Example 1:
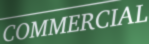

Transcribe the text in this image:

COMMERCIAL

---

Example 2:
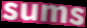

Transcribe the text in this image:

sums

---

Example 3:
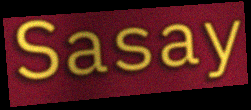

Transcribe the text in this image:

Sasay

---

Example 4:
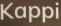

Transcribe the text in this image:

Kappi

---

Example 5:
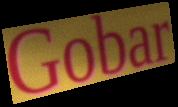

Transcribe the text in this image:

Gobar